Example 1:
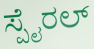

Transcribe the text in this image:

ಸ್ಪೈರಲ್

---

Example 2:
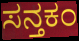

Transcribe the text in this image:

ಸನ್ತಕಂ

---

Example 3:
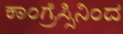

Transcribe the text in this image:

ಕಾಂಗ್ರೆಸ್ಸಿನಿಂದ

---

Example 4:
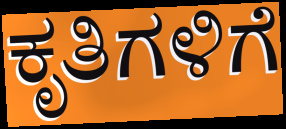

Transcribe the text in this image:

ಕೃತಿಗಳಿಗೆ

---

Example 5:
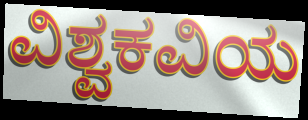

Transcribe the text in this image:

ವಿಶ್ವಕವಿಯ